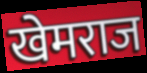
खेमराज